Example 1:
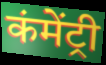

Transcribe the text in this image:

कंमेंट्री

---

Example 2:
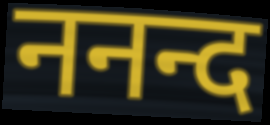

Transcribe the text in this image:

ननन्द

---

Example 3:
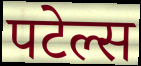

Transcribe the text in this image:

पटेल्स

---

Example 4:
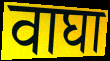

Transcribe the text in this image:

वाघा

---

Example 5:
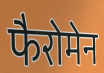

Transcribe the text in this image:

फैरोमेन